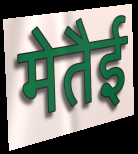
मेतैई